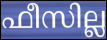
ഫീസില്ല